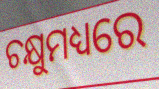
ଚକ୍ଷୁମଧ୍ଯରେ